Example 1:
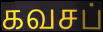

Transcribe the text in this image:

கவசப்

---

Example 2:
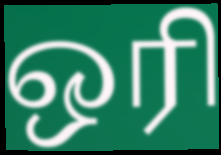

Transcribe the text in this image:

ஒரி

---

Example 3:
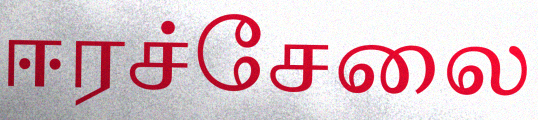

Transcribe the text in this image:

ஈரச்சேலை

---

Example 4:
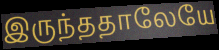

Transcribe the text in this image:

இருந்ததாலேயே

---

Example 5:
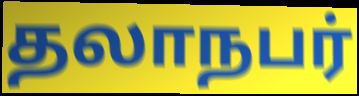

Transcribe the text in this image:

தலாநபர்